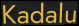
Kadalu